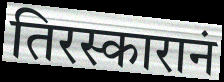
तिरस्कारानं